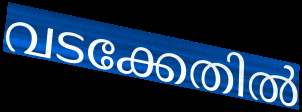
വടക്കേതിൽ